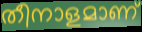
തീനാളമാണ്